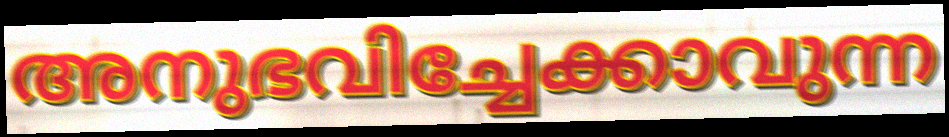
അനുഭവിച്ചേക്കാവുന്ന